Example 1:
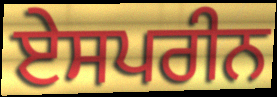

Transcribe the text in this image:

ਏਸਪਰੀਨ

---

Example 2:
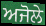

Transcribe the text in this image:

ਅਜੋਲੇ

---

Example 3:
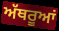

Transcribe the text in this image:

ਅੱਥਰੂਆਂ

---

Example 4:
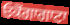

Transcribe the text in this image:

ਓਕੋਂਗਾਗਾਟਾ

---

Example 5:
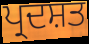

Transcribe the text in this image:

ਪ੍ਰਦਸ਼ਤ